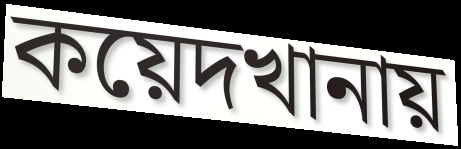
কয়েদখানায়